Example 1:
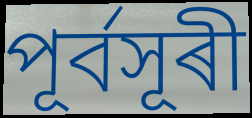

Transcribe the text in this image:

পূৰ্বসূৰী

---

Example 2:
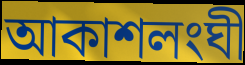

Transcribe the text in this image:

আকাশলংঘী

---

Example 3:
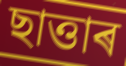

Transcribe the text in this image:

ছাত্তাৰ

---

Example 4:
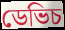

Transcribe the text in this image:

ডেভিচ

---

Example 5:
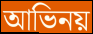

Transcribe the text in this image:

আভিনয়